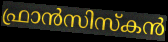
ഫ്രാൻസിസ്കൻ